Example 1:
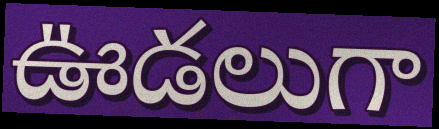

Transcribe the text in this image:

ఊడలుగా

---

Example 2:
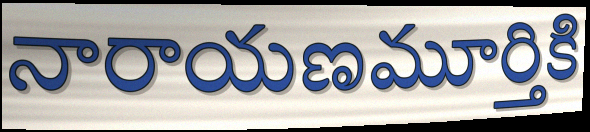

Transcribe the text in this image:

నారాయణమూర్తికి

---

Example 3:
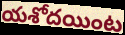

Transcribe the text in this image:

యశోదయింట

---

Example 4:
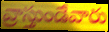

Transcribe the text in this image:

వ్రాస్తుండేవారు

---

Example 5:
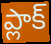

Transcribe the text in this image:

ప్లాక్